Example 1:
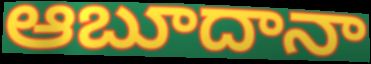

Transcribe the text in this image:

ఆబూదానా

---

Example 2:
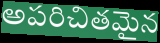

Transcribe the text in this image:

అపరిచితమైన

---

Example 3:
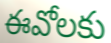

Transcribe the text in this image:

ఈవోలకు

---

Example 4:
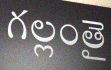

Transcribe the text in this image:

గల్లంతై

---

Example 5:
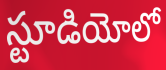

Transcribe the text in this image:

స్టూడియోలో